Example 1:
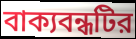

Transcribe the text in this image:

বাক্যবন্ধটির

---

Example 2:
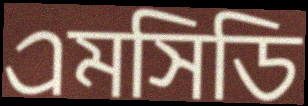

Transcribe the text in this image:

এমসিডি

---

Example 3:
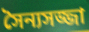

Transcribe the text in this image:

সৈন্যসজ্জা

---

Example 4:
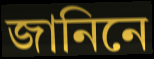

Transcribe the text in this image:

জানিনে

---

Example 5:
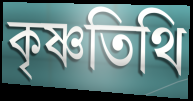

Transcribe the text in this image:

কৃষ্ণতিথি